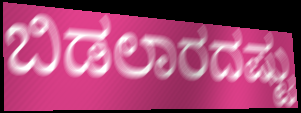
ಬಿಡಲಾರದಷ್ಟು